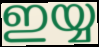
ഇയ്യ